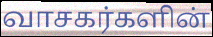
வாசகர்களின்